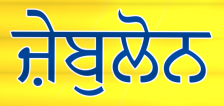
ਜ਼ੇਬੁਲੋਨ